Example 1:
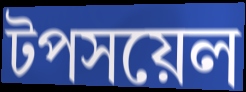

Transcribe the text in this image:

টপসয়েল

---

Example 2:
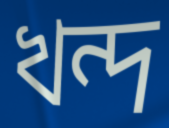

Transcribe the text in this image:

খন্দ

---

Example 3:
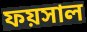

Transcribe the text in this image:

ফয়সাল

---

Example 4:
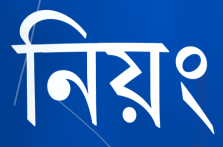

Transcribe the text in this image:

নিয়ং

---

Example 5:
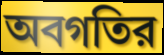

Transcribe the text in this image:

অবগতির